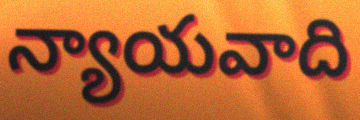
న్యాయవాది